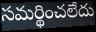
సమర్థించలేదు